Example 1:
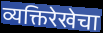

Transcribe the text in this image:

व्यक्तिरेखेचा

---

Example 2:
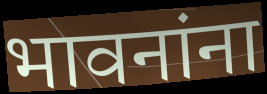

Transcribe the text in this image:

भावनांना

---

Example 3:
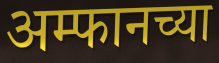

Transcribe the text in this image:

अम्फानच्या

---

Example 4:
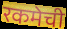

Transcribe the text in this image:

रकमेची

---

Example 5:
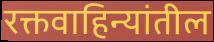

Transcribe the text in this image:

रक्तवाहिन्यांतील